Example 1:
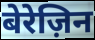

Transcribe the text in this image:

बेरेज़िन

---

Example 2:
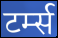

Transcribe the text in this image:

टर्म्स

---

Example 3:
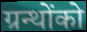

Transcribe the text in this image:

ग्रन्थोंको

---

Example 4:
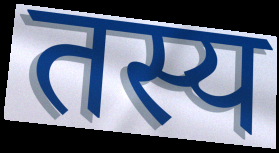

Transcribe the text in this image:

तस्य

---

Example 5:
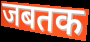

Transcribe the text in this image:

जबतक